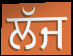
ਲੱਜ